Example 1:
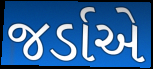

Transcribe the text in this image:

જર્ડાએ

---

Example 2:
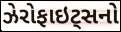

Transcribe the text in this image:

ઝેરોફાઇટ્સનો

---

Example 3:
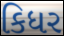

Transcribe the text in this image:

કિધર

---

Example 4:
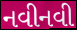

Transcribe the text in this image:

નવીનવી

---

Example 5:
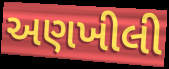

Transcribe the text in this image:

અણખીલી